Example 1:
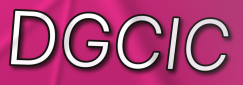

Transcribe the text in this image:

DGCIC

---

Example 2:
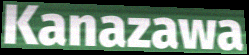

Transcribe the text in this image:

Kanazawa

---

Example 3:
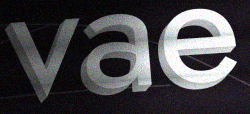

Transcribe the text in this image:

vae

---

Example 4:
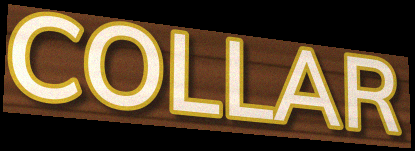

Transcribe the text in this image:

COLLAR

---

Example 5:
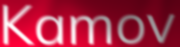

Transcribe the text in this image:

Kamov